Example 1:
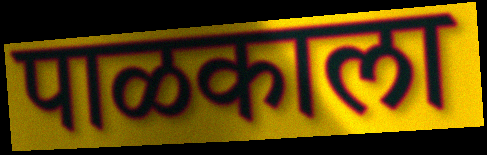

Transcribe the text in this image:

पाळकाला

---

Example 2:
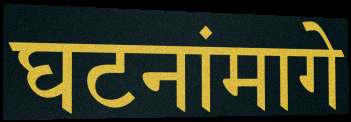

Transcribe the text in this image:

घटनांमागे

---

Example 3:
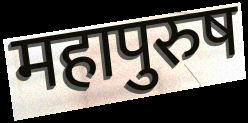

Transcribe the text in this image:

महापुरुष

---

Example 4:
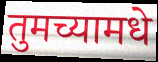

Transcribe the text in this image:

तुमच्यामधे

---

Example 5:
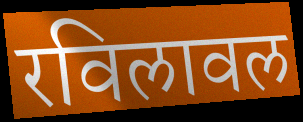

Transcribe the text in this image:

रविलावल